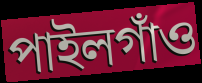
পাইলগাঁও